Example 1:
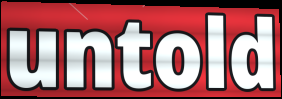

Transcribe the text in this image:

untold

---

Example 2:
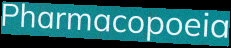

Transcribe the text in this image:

Pharmacopoeia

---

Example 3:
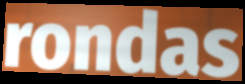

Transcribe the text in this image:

rondas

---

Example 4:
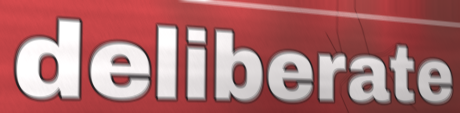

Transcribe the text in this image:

deliberate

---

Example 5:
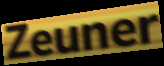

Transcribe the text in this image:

Zeuner